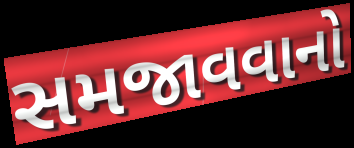
સમજાવવાનો